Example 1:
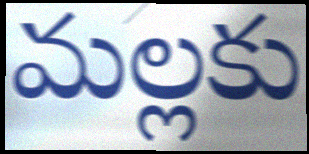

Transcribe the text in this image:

మల్లకు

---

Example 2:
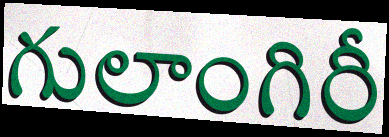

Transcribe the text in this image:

గులాంగిరీ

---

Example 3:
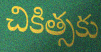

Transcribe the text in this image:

చికిత్సకు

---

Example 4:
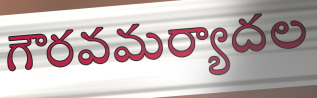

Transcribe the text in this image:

గౌరవమర్యాదల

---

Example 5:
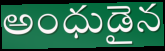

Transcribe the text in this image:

అంధుడైన